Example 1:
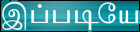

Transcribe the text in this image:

இப்படியே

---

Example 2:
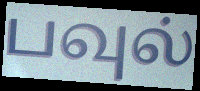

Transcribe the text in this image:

பவுல்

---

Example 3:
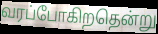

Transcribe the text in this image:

வரப்போகிறதென்று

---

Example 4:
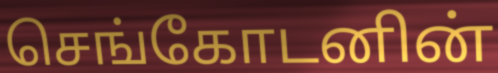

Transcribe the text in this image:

செங்கோடனின்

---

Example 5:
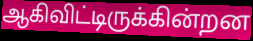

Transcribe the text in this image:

ஆகிவிட்டிருக்கின்றன